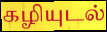
கழியுடல்